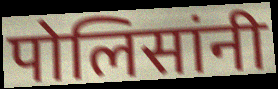
पोलिसांनी